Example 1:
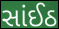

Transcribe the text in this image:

સાંઈઠ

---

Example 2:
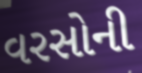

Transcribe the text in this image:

વરસોની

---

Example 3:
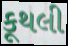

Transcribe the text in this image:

કૂથલી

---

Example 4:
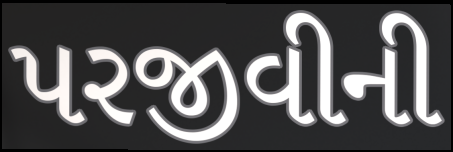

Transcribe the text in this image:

પરજીવીની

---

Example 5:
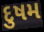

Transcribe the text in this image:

દુષમ